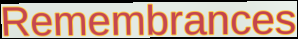
Remembrances